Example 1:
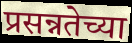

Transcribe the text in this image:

प्रसन्नतेच्या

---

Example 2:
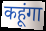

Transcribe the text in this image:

कहूंगा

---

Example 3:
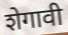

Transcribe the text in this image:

शेगावी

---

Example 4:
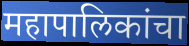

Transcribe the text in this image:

महापालिकांचा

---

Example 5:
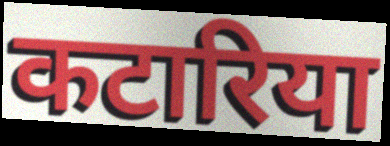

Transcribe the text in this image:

कटारिया